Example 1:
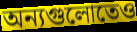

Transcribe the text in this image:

অন্যগুলোতেও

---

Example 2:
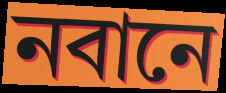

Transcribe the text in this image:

নবানে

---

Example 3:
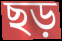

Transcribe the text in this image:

ছড়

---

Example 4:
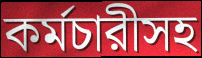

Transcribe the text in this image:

কর্মচারীসহ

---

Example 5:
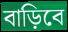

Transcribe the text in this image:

বাড়িবে